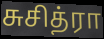
சுசித்ரா